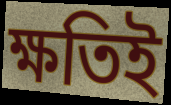
ক্ষতিই